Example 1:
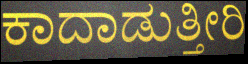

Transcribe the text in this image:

ಕಾದಾಡುತ್ತೀರಿ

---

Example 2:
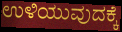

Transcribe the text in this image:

ಉಳಿಯುವುದಕ್ಕೆ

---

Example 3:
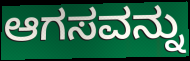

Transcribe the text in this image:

ಆಗಸವನ್ನು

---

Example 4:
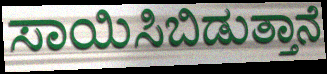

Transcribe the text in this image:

ಸಾಯಿಸಿಬಿಡುತ್ತಾನೆ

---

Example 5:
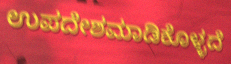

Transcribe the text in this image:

ಉಪದೇಶಮಾಡಿಕೊಳ್ಳದೆ